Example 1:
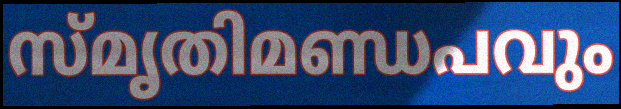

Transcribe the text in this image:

സ്മൃതിമണ്ഡപവും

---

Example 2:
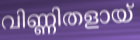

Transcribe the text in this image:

വിണ്ണിതളായ്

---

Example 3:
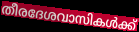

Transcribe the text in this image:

തീരദേശവാസികൾക്ക്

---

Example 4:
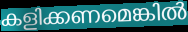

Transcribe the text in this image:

കളിക്കണമെങ്കിൽ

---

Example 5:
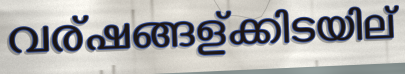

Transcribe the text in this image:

വര്ഷങ്ങള്ക്കിടയില്